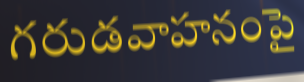
గరుడవాహనంపై